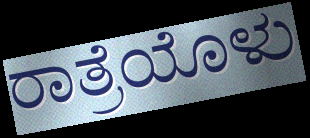
ರಾತ್ರೆಯೊಳು